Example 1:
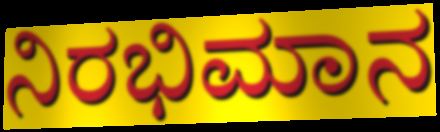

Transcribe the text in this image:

ನಿರಭಿಮಾನ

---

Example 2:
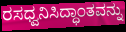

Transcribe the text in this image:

ರಸಧ್ವನಿಸಿದ್ಧಾಂತವನ್ನು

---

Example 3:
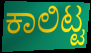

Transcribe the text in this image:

ಕಾಲಿಟ್ಟ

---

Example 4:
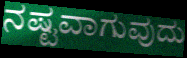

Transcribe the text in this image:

ನಷ್ಟವಾಗುವುದು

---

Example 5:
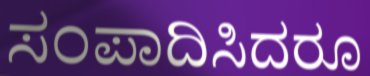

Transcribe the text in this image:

ಸಂಪಾದಿಸಿದರೂ